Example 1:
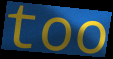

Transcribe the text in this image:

too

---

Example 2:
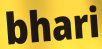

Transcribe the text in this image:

bhari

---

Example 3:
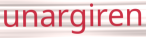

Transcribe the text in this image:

unargiren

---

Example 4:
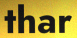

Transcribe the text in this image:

thar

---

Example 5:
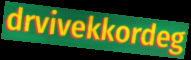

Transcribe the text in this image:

drvivekkordeg